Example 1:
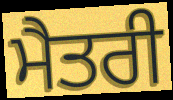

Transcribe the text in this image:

ਮੈਤਰੀ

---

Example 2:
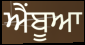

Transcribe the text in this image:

ਐਂਬੂਆ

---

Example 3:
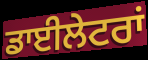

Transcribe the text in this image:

ਡਾਈਲੇਟਰਾਂ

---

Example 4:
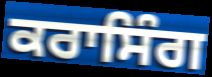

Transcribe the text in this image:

ਕਰਾਸਿੰਗ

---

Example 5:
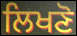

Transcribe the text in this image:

ਲਿਖਣੋ